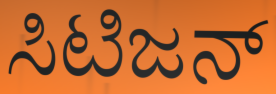
ಸಿಟಿಜನ್